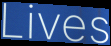
Lives